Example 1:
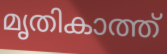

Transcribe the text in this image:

മൃതികാത്ത്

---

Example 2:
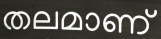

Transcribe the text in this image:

തലമാണ്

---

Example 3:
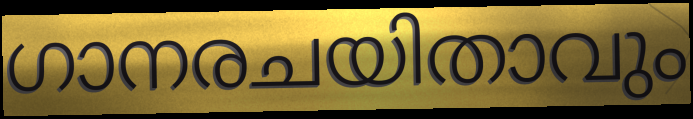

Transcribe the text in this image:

ഗാനരചയിതാവും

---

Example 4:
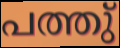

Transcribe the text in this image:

പത്തു്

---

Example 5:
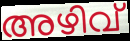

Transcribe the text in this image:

അഴിവ്